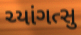
ચ્યાંગત્સુ